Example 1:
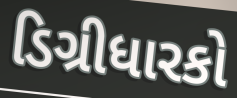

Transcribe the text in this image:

ડિગ્રીધારકો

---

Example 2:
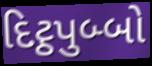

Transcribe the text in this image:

દિટ્ઠપુબ્બો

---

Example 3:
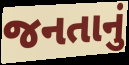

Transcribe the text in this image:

જનતાનું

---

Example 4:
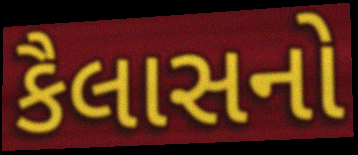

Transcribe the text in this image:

કૈલાસનો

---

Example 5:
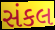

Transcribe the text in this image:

સંકલ